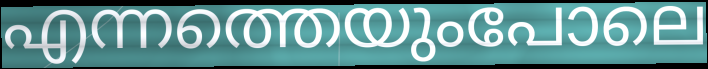
എന്നത്തെയുംപോലെ